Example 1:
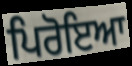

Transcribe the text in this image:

ਪਿਰੋਇਆ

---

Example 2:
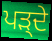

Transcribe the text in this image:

ਪੜ੍ਦੇ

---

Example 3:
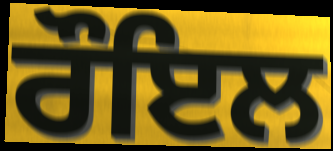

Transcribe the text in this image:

ਰੌਇਲ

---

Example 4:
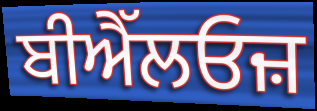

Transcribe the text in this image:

ਬੀਐੱਲਓਜ਼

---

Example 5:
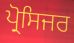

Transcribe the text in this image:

ਪ੍ਰੋਸਿਜਰ